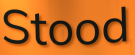
Stood